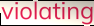
violating